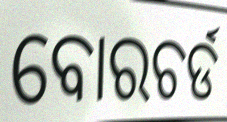
ବୋରଚର୍ଡ